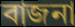
বাজনা